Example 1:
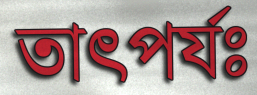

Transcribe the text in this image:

তাৎপর্যঃ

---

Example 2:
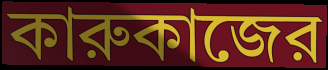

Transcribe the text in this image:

কারুকাজের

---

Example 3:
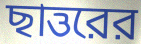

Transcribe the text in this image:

ছাত্তরের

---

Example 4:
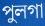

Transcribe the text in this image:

পুলগা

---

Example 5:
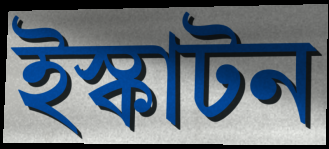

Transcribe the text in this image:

ইস্কাটন